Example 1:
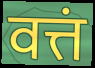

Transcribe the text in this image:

वत्तं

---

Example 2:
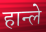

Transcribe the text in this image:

हान्ले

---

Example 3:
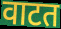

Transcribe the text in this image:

वाटत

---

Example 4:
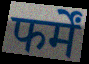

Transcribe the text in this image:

फर्में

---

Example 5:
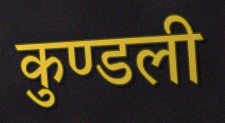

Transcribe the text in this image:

कुण्डली